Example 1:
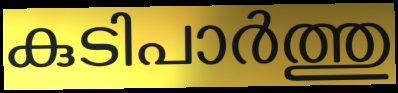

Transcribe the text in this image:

കുടിപാർത്തു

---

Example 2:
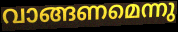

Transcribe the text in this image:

വാങ്ങണമെന്നു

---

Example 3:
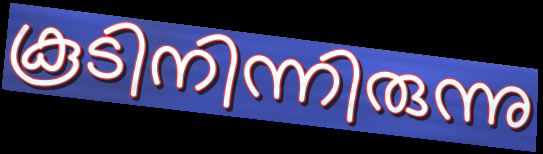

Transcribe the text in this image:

കൂടിനിന്നിരുന്നു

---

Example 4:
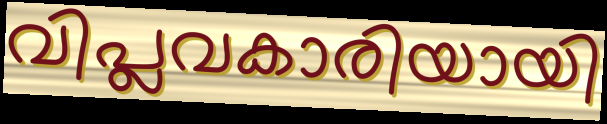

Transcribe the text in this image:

വിപ്ലവകാരിയായി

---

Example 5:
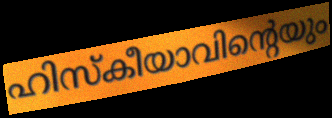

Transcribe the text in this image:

ഹിസ്കീയാവിന്റെയും